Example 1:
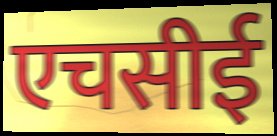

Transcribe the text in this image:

एचसीई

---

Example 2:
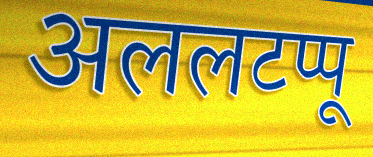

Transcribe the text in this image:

अललटप्पू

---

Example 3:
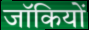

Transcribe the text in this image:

जॉकियों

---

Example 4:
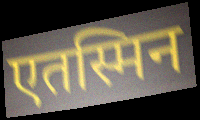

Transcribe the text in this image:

एतस्मिन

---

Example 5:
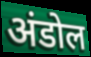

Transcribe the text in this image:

अंडोल